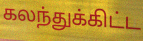
கலந்துக்கிட்ட